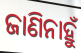
ଜାଣିନାହୁଁ